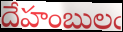
దేహంబులఁ